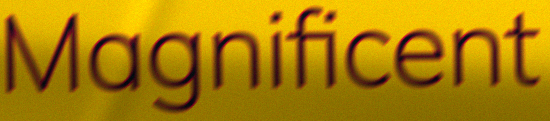
Magnificent